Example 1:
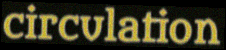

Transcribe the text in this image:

circulation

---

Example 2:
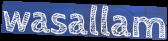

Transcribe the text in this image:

wasallam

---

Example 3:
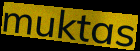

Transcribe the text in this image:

muktas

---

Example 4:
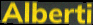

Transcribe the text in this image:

Alberti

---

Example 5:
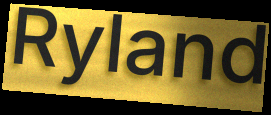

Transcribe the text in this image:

Ryland